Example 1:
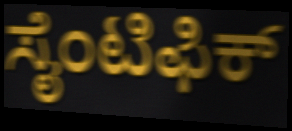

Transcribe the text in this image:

ಸೈಂಟಿಫಿಕ್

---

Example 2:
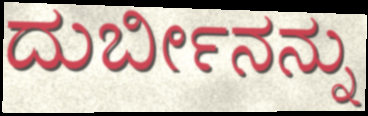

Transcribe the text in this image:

ದುರ್ಬೀನನ್ನು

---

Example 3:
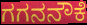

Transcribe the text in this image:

ಗಗನನೌಕೆ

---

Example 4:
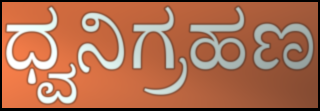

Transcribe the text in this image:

ಧ್ವನಿಗ್ರಹಣ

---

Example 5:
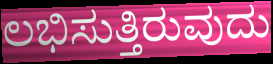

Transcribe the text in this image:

ಲಭಿಸುತ್ತಿರುವುದು